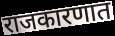
राजकारणात